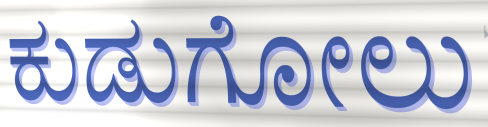
ಕುಡುಗೋಲು